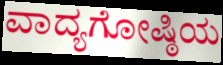
ವಾದ್ಯಗೋಷ್ಠಿಯ